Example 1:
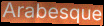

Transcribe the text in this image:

Arabesque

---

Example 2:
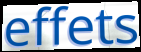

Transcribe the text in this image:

effets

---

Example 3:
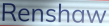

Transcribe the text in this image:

Renshaw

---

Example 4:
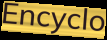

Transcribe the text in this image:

Encyclo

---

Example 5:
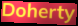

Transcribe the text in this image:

Doherty